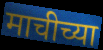
माचीच्या